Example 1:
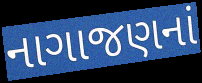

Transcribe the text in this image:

નાગાજણનાં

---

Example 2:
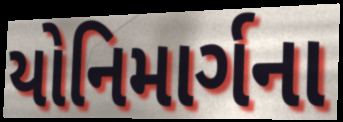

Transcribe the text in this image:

યોનિમાર્ગના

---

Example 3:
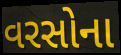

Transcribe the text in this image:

વરસોના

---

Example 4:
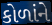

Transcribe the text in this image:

કોળાંને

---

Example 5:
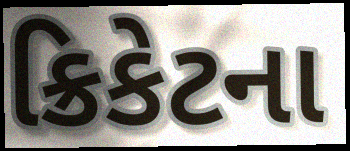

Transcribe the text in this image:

ક્રિકેટના